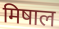
मिषाल